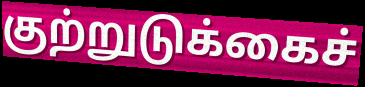
குற்றுடுக்கைச்